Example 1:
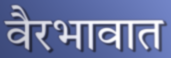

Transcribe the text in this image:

वैरभावात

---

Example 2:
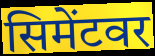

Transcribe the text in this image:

सिमेंटवर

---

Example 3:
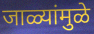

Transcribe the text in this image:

जाळ्यांमुळे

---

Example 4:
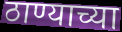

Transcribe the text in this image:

ठाण्याच्या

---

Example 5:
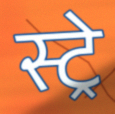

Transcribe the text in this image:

स्ट्रे